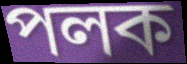
পলক